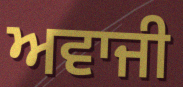
ਅਵਾਜੀ